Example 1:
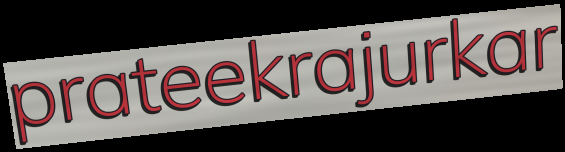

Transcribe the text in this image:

prateekrajurkar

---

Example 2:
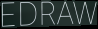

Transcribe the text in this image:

EDRAW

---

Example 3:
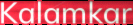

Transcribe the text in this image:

Kalamkar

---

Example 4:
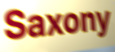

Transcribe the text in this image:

Saxony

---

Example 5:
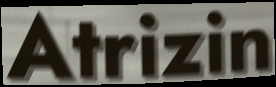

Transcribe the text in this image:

Atrizin